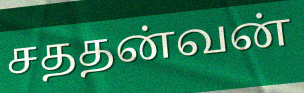
சததன்வன்